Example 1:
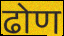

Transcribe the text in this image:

ढोण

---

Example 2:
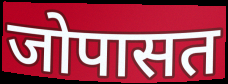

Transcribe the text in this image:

जोपासत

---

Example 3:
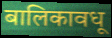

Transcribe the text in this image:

बालिकावधू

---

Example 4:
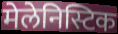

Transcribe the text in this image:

मेलेनिस्टिक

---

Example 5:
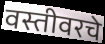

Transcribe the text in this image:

वस्तीवरचे